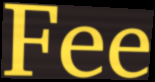
Fee